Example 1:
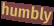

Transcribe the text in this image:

humbly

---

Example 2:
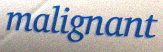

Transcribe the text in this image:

malignant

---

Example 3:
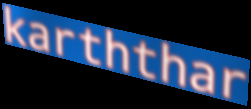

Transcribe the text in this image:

karththar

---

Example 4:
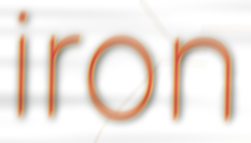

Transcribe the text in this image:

iron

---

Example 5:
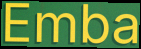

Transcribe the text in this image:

Emba